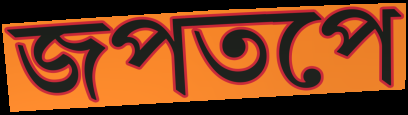
জপতপে